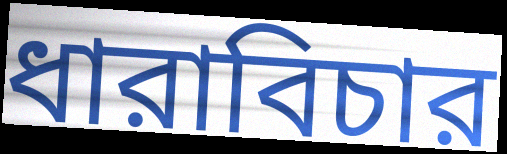
ধারাবিচার